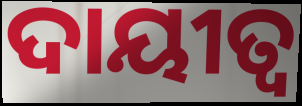
ଦାୟୀତ୍ୱ